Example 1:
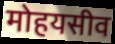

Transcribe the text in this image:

मोहयसीव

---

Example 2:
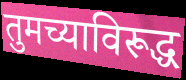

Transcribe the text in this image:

तुमच्याविरूद्ध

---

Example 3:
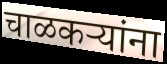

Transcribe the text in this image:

चाळकऱ्यांना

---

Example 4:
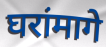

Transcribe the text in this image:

घरांमागे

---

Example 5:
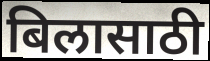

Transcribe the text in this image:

बिलासाठी